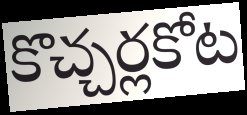
కొచ్చర్లకోట